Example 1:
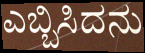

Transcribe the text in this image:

ಎಬ್ಬಿಸಿದನು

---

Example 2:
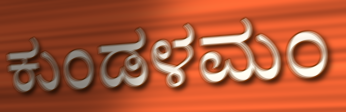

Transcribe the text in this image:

ಕುಂಡಳಮಂ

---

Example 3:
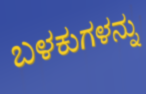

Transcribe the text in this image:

ಬಳಕುಗಳನ್ನು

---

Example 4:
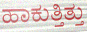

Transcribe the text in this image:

ಹಾಕುತ್ತಿತ್ತು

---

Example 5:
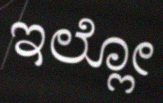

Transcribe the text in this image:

ಇಲ್ಲೋ